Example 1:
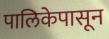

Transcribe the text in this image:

पालिकेपासून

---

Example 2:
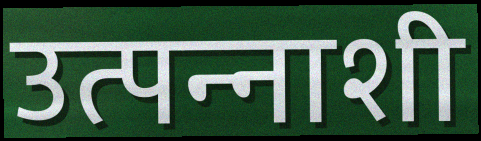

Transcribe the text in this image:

उत्पन्नाशी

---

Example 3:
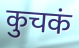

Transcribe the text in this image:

कुचकं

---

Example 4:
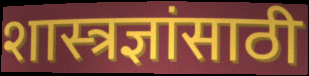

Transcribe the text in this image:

शास्त्रज्ञांसाठी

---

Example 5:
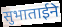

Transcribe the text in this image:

सुभाताईने